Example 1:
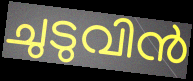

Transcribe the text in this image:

ചുടുവിൻ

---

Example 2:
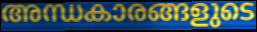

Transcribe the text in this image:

അന്ധകാരങ്ങളുടെ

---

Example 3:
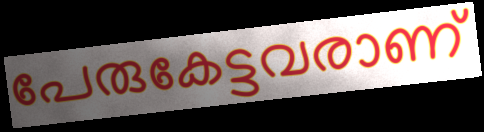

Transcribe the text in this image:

പേരുകേട്ടവരാണ്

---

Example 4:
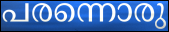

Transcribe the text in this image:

പരന്നൊരു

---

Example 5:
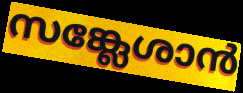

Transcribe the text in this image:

സങ്ക്ലേശാൻ